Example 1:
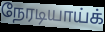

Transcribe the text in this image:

நேரடியாய்க்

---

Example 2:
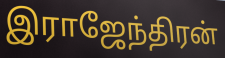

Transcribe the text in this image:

இராஜேந்திரன்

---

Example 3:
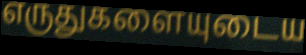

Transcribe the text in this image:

எருதுகளையுடைய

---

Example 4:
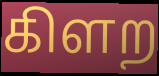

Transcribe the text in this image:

கிளற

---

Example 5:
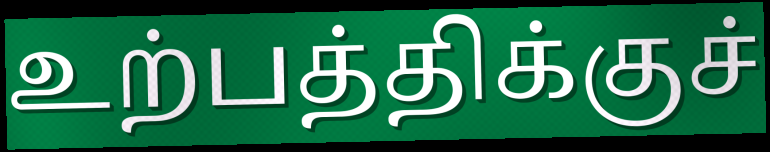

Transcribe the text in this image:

உற்பத்திக்குச்